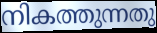
നികത്തുന്നതു